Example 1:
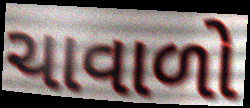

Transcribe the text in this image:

ચાવાળો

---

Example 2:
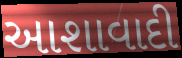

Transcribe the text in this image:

આશાવાદી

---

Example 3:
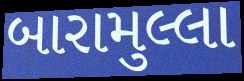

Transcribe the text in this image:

બારામુલ્લા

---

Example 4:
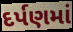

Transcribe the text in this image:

દર્પણમાં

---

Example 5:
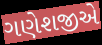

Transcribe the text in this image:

ગણેશજીએ